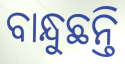
ବାନ୍ଧୁଛନ୍ତି